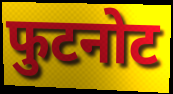
फुटनोट